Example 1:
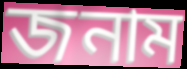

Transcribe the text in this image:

জনাম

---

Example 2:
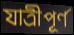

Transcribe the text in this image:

যাত্রীপূর্ণ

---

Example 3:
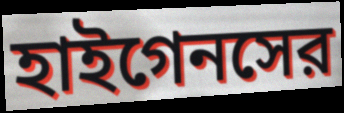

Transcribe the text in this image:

হাইগেনসের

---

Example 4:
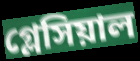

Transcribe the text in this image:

গ্লেসিয়াল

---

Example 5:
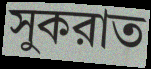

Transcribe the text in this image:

সুকরাত